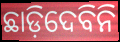
ଛାଡ଼ିଦେବିନି